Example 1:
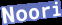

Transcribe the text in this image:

Noori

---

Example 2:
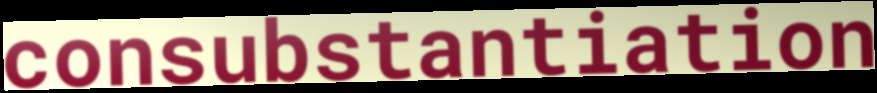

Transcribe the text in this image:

consubstantiation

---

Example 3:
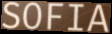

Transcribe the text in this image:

SOFIA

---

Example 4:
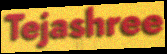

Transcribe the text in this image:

Tejashree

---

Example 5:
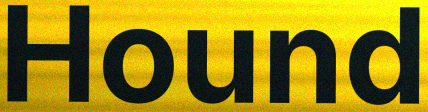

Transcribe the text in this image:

Hound